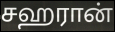
சஹரான்